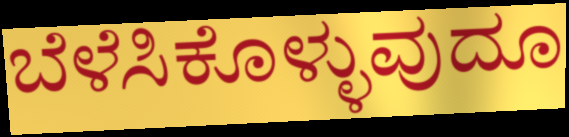
ಬೆಳೆಸಿಕೊಳ್ಳುವುದೂ